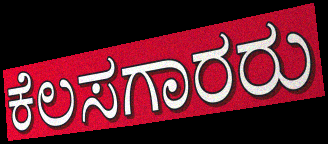
ಕೆಲಸಗಾರರು